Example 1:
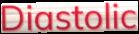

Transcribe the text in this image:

Diastolic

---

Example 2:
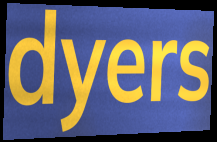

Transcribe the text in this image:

dyers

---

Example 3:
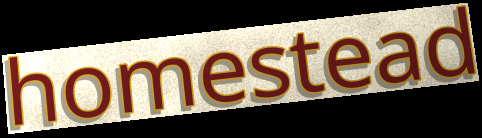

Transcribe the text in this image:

homestead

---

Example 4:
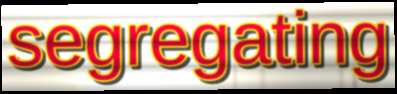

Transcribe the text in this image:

segregating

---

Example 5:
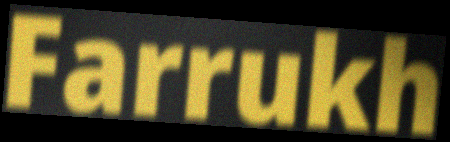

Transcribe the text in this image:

Farrukh